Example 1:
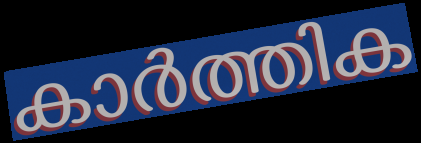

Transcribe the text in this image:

കാർത്തിക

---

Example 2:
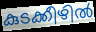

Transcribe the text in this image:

കുടക്കീഴിൽ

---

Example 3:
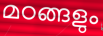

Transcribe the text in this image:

മഠങ്ങളും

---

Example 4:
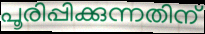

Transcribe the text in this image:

പൂരിപ്പിക്കുന്നതിന്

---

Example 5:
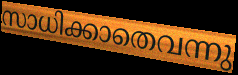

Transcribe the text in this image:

സാധിക്കാതെവന്നു